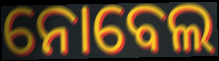
ନୋବେଲ